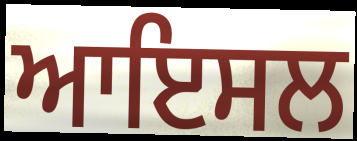
ਆਇਸਲ